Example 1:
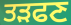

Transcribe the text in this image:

ਤੜਫਣ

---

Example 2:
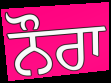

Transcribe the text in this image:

ਨੌਰਾ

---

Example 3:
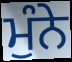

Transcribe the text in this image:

ਮੁੰਨੇ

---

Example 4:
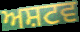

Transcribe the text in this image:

ਅਸ਼ਟਵ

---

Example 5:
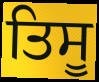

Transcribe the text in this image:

ਤਿਸੂ